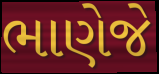
ભાણેજે